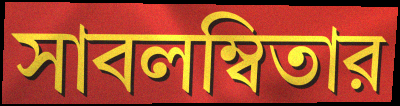
সাবলম্বিতার